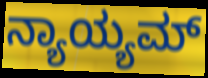
ನ್ಯಾಯ್ಯಮ್